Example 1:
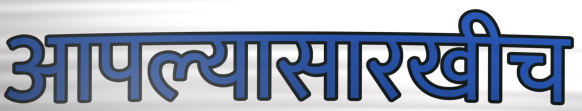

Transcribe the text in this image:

आपल्यासारखीच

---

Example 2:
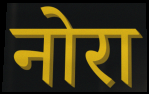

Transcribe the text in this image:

नोरा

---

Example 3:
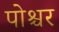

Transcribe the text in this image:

पोश्चर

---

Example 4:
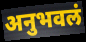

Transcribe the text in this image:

अनुभवलं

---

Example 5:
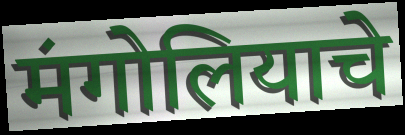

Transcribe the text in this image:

मंगोलियाचे